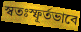
স্বতঃস্ফূৰ্তভাবে